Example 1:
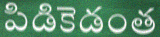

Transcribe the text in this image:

పిడికెడంత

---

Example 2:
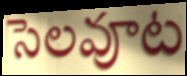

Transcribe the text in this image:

సెలవూట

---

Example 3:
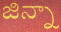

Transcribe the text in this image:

జిన్నా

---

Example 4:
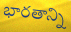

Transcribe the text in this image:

భారతాన్ని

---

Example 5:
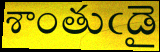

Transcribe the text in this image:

శాంతుఁడై